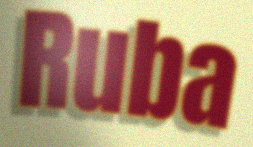
Ruba